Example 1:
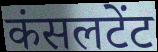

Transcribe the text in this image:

कंसलटेंट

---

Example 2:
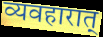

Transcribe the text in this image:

व्यवहारात्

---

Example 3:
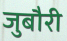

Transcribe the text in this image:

जुबौरी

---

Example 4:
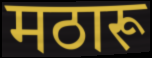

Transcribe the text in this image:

मठारू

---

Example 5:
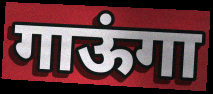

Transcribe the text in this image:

गाऊंगा